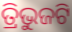
ତ୍ରିଭୁଜଟି